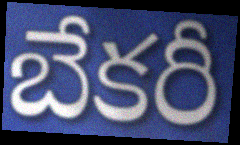
బేకరీ